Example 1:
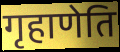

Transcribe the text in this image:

गृहाणेति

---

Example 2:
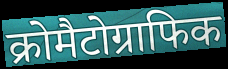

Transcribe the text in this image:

क्रोमैटोग्राफिक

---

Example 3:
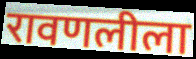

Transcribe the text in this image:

रावणलीला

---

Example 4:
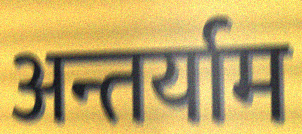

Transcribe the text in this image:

अन्तर्याम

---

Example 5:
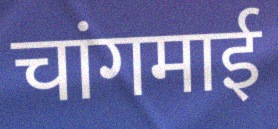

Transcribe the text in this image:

चांगमाई